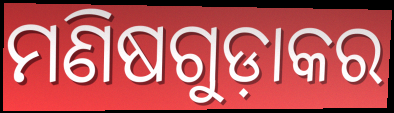
ମଣିଷଗୁଡ଼ାକର